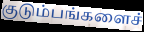
குடும்பங்களைச்